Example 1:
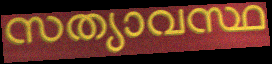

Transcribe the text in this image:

സത്യാവസ്ഥ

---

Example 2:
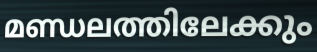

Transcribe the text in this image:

മണ്ഡലത്തിലേക്കും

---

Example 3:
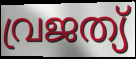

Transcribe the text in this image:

വ്രജത്യ്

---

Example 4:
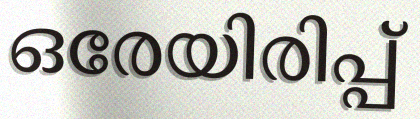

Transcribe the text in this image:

ഒരേയിരിപ്പ്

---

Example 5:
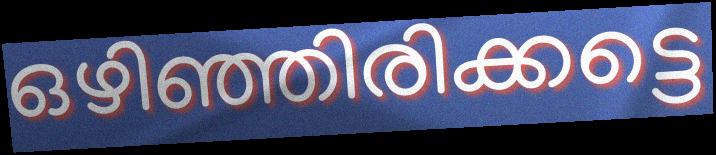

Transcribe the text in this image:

ഒഴിഞ്ഞിരിക്കട്ടെ